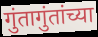
गुंतागुंतांच्या